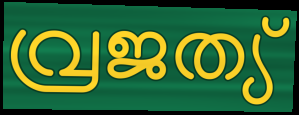
വ്രജത്യ്